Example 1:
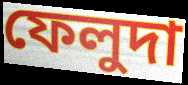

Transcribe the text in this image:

ফেলুদা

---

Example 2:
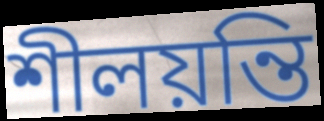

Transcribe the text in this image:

শীলয়ন্তি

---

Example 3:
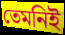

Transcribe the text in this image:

তেমনিই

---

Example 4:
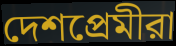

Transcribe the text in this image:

দেশপ্রেমীরা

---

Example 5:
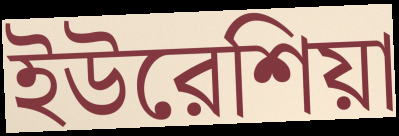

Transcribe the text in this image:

ইউরেশিয়া